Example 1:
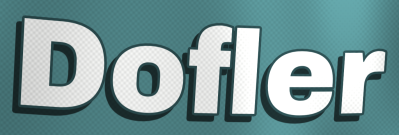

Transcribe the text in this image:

Dofler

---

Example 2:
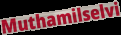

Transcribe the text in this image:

Muthamilselvi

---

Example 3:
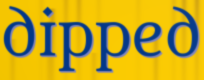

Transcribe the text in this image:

dipped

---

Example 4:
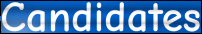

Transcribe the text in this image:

Candidates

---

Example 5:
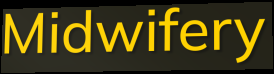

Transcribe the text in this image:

Midwifery